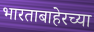
भारताबाहेरच्या